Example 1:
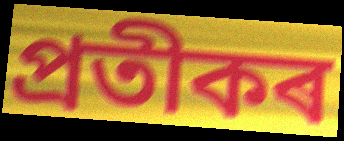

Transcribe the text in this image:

প্ৰতীকৰ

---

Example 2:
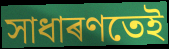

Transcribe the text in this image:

সাধাৰণতেই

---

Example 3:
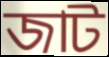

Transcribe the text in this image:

জাট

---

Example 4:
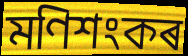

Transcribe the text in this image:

মণিশংকৰ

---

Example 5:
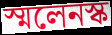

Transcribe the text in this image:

স্মলেনস্ক